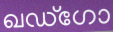
ഖഡ്ഗോ